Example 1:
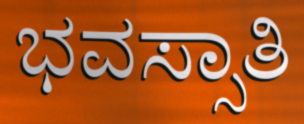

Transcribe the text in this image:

ಭವಸ್ಸಾತಿ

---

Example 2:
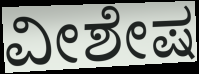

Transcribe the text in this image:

ವೀಶೇಷ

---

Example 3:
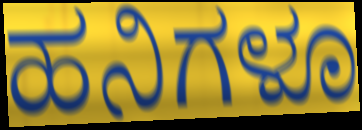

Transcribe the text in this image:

ಹನಿಗಳೂ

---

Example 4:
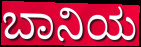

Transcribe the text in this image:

ಬಾನಿಯ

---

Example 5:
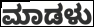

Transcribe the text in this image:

ಮಾಡಳು